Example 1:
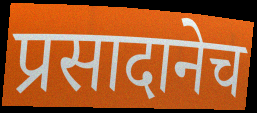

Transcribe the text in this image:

प्रसादानेच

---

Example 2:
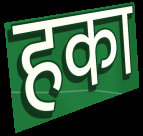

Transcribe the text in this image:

हका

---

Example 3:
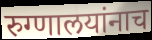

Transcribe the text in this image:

रुग्णालयांनाच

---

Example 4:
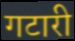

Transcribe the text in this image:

गटारी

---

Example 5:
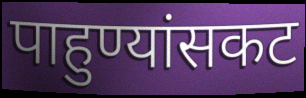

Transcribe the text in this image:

पाहुण्यांसकट